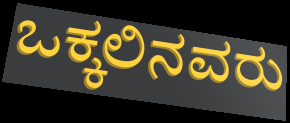
ಒಕ್ಕಲಿನವರು